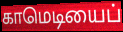
காமெடியைப்